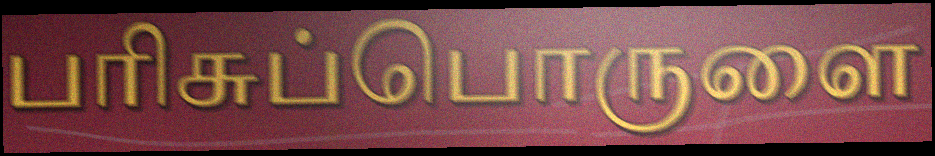
பரிசுப்பொருளை